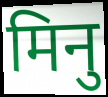
मिनु